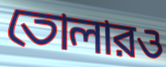
তোলারও